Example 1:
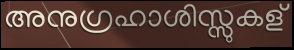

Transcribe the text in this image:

അനുഗ്രഹാശിസ്സുകള്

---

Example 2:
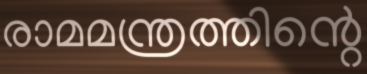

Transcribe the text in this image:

രാമമന്ത്രത്തിന്റെ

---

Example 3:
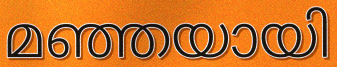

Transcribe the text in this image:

മഞ്ഞയായി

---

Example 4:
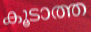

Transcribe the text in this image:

കൂടാത്ത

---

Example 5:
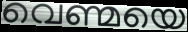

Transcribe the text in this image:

വെണ്മയെ